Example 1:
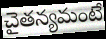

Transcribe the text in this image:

చైతన్యమంటే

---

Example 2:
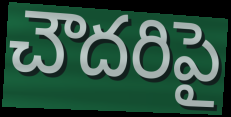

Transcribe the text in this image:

చౌదరిపై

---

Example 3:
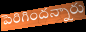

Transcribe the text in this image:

పెరిగిందన్నారు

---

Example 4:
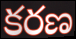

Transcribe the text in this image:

కరణ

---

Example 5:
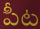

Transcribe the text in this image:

పీట